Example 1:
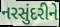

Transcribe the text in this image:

નરસુંદરીને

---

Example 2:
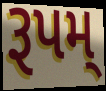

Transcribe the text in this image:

રૂપમ્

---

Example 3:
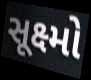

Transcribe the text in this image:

સૂક્ષ્મો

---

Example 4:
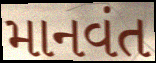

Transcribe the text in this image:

માનવંત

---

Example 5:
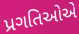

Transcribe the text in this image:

પ્રગતિઓએ